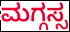
ಮಗ್ಗಸ್ಸ